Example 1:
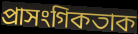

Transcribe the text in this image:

প্ৰাসংগিকতাক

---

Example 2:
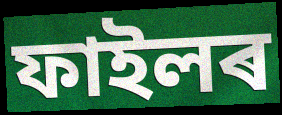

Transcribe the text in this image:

ফাইলৰ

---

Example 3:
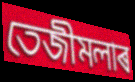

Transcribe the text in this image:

তেজীমলাৰ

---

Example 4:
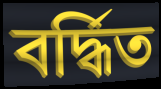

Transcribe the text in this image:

বৰ্দ্ধিত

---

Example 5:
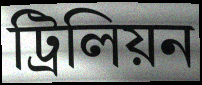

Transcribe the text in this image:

ট্ৰিলিয়ন